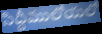
సిద్దీములోయలో